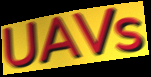
UAVs